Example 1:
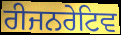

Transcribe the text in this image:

ਰੀਜਨਰੇਟਿਵ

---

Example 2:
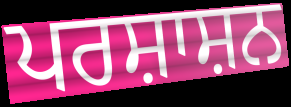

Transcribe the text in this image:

ਪਰਸ਼ਾਸ਼ਨ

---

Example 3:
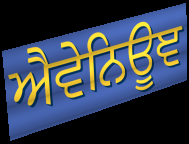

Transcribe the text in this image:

ਐਵੇਨਿਊਞ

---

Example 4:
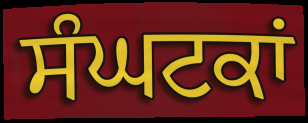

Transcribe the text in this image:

ਸੰਘਟਕਾਂ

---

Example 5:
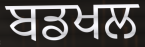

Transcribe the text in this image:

ਬਡਖਲ